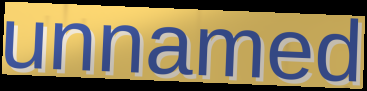
unnamed